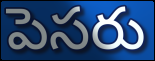
పెసరు